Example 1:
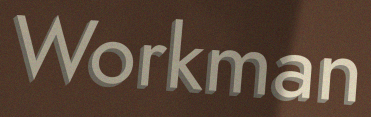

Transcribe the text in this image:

Workman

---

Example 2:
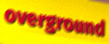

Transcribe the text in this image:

overground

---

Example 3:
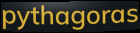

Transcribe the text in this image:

pythagoras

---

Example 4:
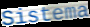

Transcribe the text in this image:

Sistema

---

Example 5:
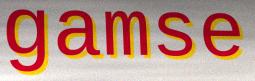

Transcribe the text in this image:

gamse